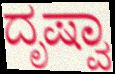
ದೃಷ್ವಾ